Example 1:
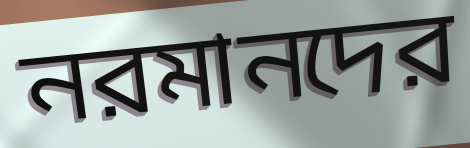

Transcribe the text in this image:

নরমানদের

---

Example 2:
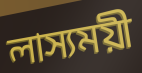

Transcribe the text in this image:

লাস্যময়ী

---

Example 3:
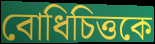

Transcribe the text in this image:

বোধিচিত্তকে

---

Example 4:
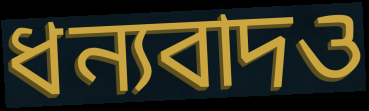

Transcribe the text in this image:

ধন্যবাদও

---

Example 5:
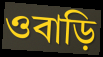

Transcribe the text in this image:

ওবাড়ি